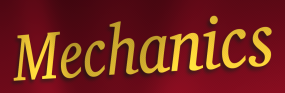
Mechanics